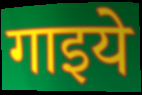
गाइये